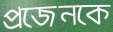
প্রজেনকে